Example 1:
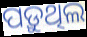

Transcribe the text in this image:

ପଡ଼ୁଥିଲ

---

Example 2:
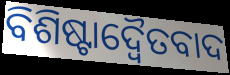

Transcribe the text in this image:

ବିଶିଷ୍ଟାଦ୍ଵୈତବାଦ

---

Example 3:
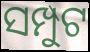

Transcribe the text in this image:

ସମ୍ପୁଟ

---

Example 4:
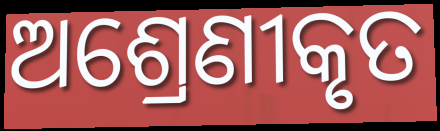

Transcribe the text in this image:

ଅଶ୍ରେଣୀକୃତ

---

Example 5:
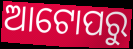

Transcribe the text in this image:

ଆଟୋପରୁ